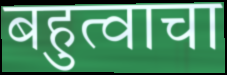
बहुत्वाचा